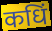
कधिं